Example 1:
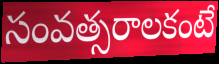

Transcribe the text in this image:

సంవత్సరాలకంటే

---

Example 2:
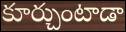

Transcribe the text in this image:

కూర్చుంటాడా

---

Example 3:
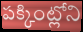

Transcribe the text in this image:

పక్కింట్లోని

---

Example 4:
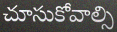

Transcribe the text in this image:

చూసుకోవాల్సి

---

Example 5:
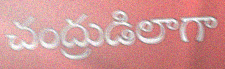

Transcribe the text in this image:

చంద్రుడిలాగా